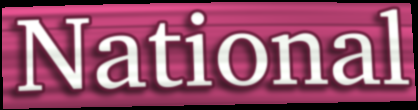
National